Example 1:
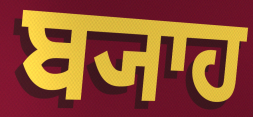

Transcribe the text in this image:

ਬ੍ਯਾਹ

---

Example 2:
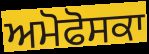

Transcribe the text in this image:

ਅਮੋਫੋਸਕਾ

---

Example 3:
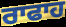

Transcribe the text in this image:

ਰਾਫਾਹ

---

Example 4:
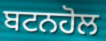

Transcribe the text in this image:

ਬਟਨਹੋਲ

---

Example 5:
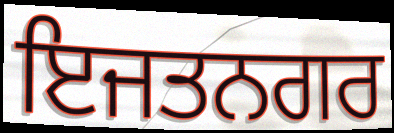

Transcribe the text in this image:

ਇਜਤਨਗਰ